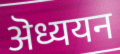
ऄध्ययन